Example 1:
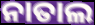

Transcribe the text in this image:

ନାତାଲ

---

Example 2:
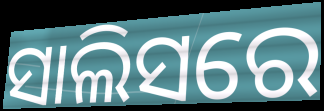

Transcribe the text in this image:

ସାଲିସରେ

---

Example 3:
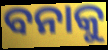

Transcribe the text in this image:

ବନାକୁ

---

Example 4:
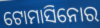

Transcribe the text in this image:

ଟୋମାସିନୋର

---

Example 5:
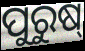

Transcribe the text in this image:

ପୁରୁଷ୍